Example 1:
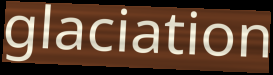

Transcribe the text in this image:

glaciation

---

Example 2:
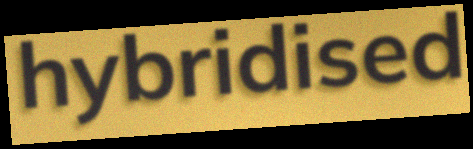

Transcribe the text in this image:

hybridised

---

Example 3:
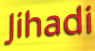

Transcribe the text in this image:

Jihadi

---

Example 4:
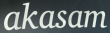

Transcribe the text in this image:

akasam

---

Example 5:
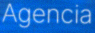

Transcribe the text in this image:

Agencia